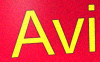
Avi